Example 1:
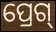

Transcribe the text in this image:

ପ୍ରେଗ୍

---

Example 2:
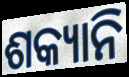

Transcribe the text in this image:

ଶକ୍ୟାନି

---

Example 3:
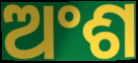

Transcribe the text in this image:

ଅଂଶ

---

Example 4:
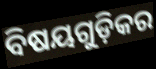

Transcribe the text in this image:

ବିଷୟଗୁଡ଼ିକର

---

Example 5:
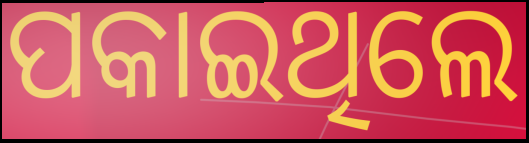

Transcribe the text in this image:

ପକାଇଥିଲେ